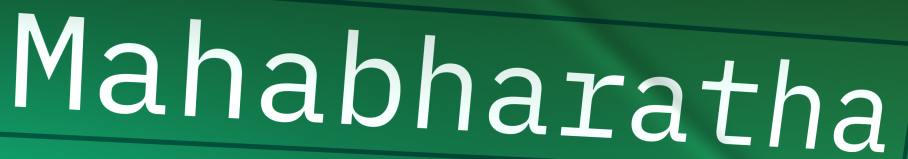
Mahabharatha